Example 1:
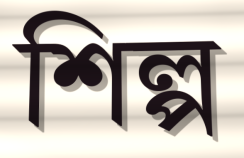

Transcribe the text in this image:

শিল্প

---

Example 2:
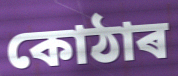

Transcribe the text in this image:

কোঠাৰ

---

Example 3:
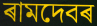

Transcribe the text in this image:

ৰামদেবৰ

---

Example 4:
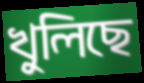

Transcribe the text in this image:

খুলিছে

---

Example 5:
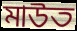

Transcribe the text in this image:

মাউত